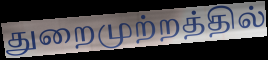
துறைமுற்றத்தில்